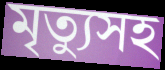
মৃত্যুসহ